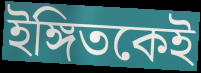
ইঙ্গিতকেই